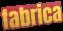
fabrica